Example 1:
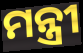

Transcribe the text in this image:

ମନ୍ତ୍ରୀ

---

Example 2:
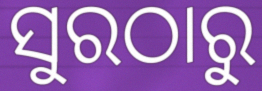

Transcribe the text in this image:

ସୁରଠାରୁ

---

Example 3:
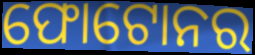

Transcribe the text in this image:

ଫୋଟୋନର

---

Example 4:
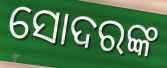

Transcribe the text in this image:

ସୋଦରଙ୍କ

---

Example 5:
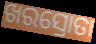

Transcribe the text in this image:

ଖରସ୍ରୋତା